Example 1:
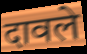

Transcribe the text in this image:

दावले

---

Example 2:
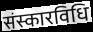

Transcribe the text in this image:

संस्कारविधि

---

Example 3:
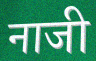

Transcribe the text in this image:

नाजी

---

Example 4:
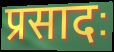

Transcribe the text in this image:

प्रसादः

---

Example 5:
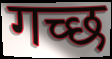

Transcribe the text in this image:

गच्छ